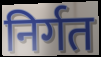
निर्गत